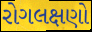
રોગલક્ષણો